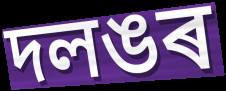
দলঙৰ